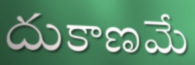
దుకాణమే